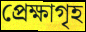
প্ৰেক্ষাগৃহ